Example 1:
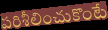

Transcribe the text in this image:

పరిశీలించుకొంటే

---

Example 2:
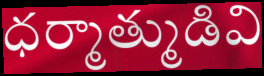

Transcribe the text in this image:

ధర్మాత్ముడివి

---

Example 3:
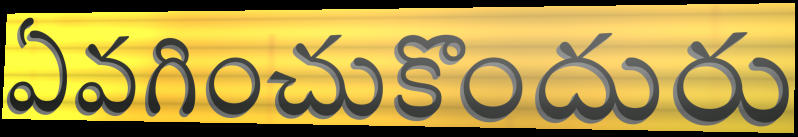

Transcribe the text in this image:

ఏవగించుకొందురు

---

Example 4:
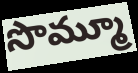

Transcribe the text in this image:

సొమ్మూ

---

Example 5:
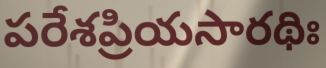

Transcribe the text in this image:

పరేశప్రియసారథిః